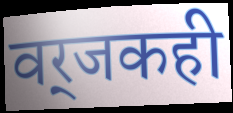
वर्जकही